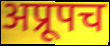
अप्रूपच